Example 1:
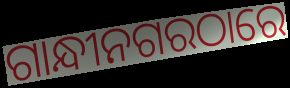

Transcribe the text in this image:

ଗାନ୍ଧୀନଗରଠାରେ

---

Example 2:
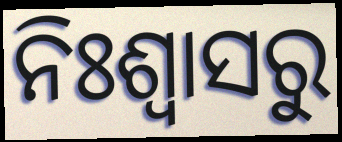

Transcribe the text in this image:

ନିଃଶ୍ଵାସରୁ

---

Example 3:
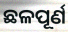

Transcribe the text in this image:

ଛଳପୂର୍ଣ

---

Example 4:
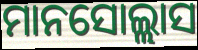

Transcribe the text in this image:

ମାନସୋଲ୍ଲାସ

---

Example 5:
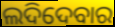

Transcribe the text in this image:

ଲଦିଦେବାର